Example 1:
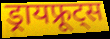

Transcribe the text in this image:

ड्रायफ्रूट्स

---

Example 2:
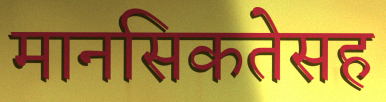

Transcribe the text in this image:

मानसिकतेसह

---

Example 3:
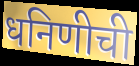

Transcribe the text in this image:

धनिणीची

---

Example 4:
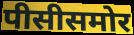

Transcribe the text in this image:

पीसीसमोर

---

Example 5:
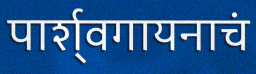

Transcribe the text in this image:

पार्श्वगायनाचं